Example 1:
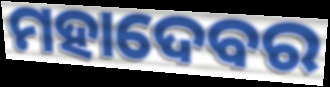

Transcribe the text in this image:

ମହାଦେବର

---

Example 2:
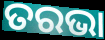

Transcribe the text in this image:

ତରଭା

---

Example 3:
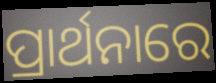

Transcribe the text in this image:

ପ୍ରାର୍ଥନାରେ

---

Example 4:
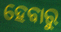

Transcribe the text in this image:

ହେବାରୁ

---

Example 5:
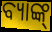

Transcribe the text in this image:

ବ୍ୟାଙ୍କ୍